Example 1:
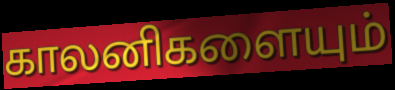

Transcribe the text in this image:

காலனிகளையும்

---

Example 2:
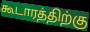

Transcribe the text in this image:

கூடாரத்திற்கு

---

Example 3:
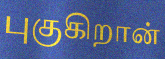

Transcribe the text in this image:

புகுகிறான்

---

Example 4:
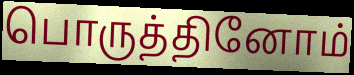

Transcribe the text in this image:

பொருத்தினோம்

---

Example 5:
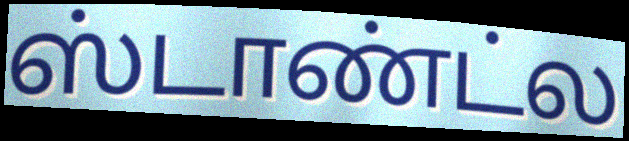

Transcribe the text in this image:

ஸ்டாண்ட்ல